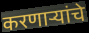
करणाऱ्यांचे